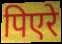
पिएरे